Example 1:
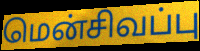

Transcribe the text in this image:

மென்சிவப்பு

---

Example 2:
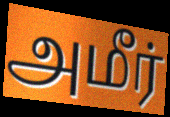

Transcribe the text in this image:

அமீர்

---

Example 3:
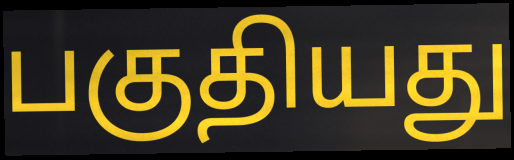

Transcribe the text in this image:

பகுதியது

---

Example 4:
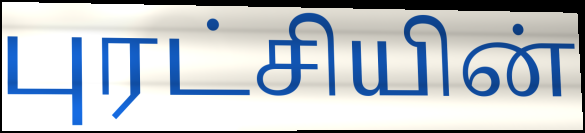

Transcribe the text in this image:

புரட்சியின்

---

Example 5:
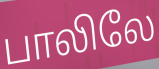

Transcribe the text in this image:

பாலிலே